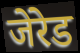
जेरेड